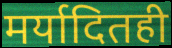
मर्यादितही